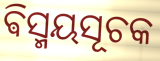
ଵିସ୍ମୟସୂଚକ